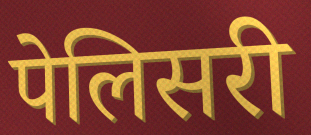
पेलिसरी